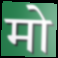
मो